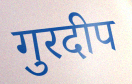
गुरदीप